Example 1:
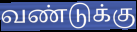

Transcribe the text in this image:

வண்டுக்கு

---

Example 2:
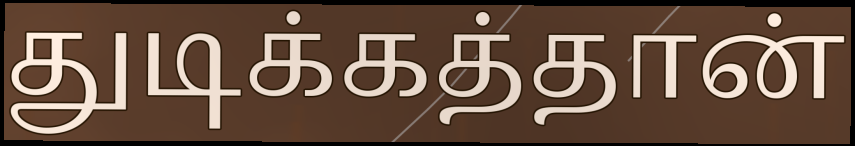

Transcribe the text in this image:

துடிக்கத்தான்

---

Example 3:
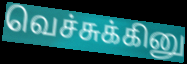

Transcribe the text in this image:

வெச்சுக்கினு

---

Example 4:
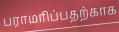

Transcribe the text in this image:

பராமரிப்பதற்காக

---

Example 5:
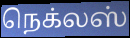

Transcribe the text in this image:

நெக்லஸ்